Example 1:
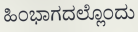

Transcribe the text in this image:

ಹಿಂಭಾಗದಲ್ಲೊಂದು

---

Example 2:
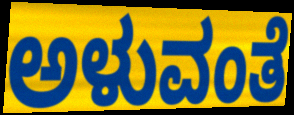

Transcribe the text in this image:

ಅಳುವಂತೆ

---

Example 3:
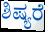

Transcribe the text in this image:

ಶಿಷ್ಯರೆ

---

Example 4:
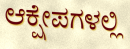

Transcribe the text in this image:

ಆಕ್ಷೇಪಗಳಲ್ಲಿ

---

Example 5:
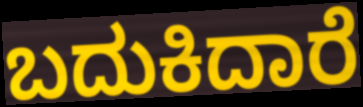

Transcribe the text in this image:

ಬದುಕಿದಾರೆ